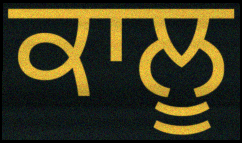
ਕਾਲੂ